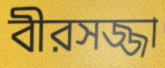
বীরসজ্জা